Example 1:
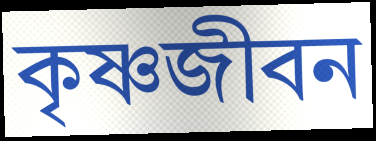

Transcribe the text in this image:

কৃষ্ণজীবন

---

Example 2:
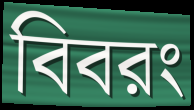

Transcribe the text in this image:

বিবরং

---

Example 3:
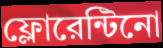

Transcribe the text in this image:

ফ্লোরেন্টিনো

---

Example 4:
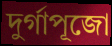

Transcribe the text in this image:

দুর্গাপূজো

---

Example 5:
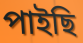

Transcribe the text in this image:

পাইছি